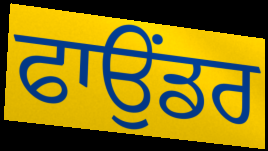
ਫਾਉਂਡਰ